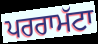
ਪਰਰਾਮੱਟਾ